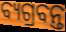
ବ୍ୟଗ୍ରବନ୍ତ